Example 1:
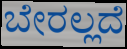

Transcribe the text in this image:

ಬೇರಲ್ಲದೆ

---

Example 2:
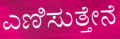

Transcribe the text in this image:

ಎಣಿಸುತ್ತೇನೆ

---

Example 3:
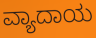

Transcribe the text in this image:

ವ್ಯಾದಾಯ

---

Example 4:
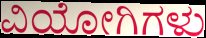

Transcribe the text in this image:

ವಿಯೋಗಿಗಳು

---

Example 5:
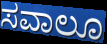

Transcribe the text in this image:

ಸವಾಲೂ